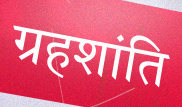
ग्रहशांति